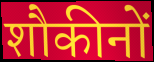
शौकीनों